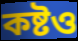
কষ্টও